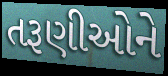
તરૂણીઓને